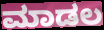
ಮಾಡಲ